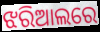
ଝରିଆଲରେ